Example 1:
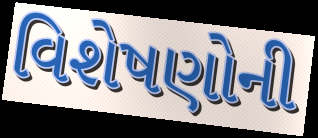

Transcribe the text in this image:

વિશેષણોની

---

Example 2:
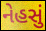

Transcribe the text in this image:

નેહસું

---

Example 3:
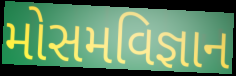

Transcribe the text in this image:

મોસમવિજ્ઞાન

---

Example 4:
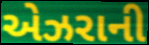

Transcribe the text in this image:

એઝરાની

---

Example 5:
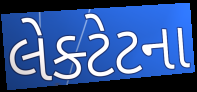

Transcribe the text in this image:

લેક્ટેટના